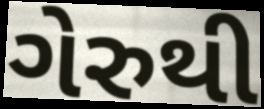
ગેરુથી